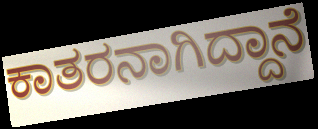
ಕಾತರನಾಗಿದ್ದಾನೆ